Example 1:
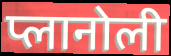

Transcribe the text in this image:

प्लानोली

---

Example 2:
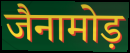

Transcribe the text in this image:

जैनामोड़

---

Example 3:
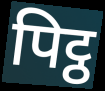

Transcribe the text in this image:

पिट्ठ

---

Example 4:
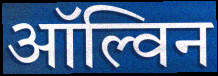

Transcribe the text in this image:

ऑल्विन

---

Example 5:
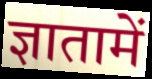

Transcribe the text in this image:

ज्ञातामें